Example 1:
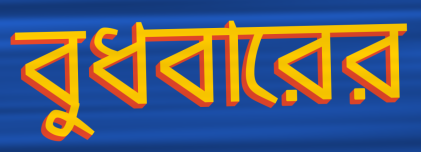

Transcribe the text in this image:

বুধবারের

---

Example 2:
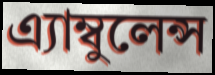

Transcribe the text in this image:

এ্যাম্বুলেন্স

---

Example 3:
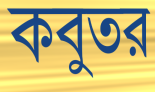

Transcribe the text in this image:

কবুতর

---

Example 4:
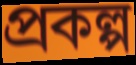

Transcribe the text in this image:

প্রকল্প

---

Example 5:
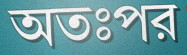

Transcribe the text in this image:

অতঃপর